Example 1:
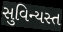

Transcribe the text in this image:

સુવિન્યસ્ત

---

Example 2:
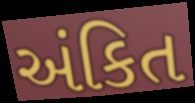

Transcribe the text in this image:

અંકિત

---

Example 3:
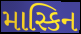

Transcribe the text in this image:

માસ્કિન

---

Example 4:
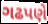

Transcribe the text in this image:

ગઢપણે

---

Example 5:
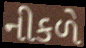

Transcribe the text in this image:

નીકળે